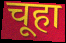
चूहा